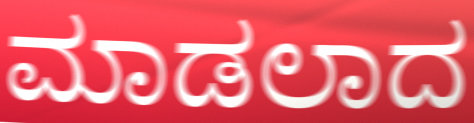
ಮಾಡಲಾದ